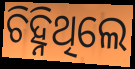
ଚିହ୍ନିଥିଲେ